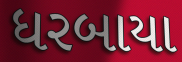
ધરબાયા